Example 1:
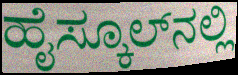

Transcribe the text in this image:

ಹೈಸ್ಕೂಲ್‍ನಲ್ಲಿ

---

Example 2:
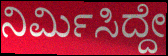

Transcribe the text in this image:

ನಿರ್ಮಿಸಿದ್ದೇ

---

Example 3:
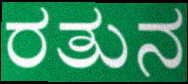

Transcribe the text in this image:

ರತುನ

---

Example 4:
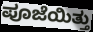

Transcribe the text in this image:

ಪೂಜೆಯಿತ್ತು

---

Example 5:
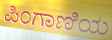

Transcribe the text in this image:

ಪಿಂಗಾಣಿಯ